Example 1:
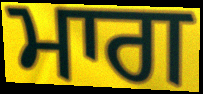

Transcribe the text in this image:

ਮਾਗ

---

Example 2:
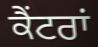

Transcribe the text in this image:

ਕੈਂਟਰਾਂ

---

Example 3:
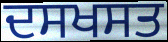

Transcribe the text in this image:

ਦਸਖਸਤ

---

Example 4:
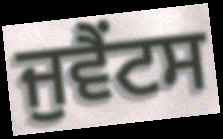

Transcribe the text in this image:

ਜੁਵੈਂਟਸ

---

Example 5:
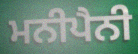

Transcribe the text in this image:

ਮਨੀਪੈਨੀ